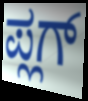
ಪ್ಲಗ್